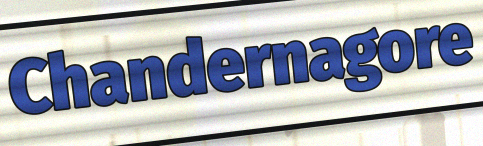
Chandernagore